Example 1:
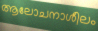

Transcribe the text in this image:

ആലോചനാശീലം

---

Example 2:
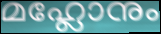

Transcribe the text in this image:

മഹ്ലോനും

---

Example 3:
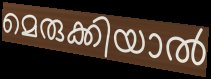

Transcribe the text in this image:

മെരുക്കിയാൽ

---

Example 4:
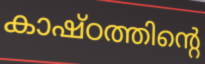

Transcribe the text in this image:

കാഷ്ഠത്തിന്റെ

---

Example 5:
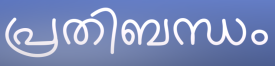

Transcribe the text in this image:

പ്രതിബന്ധം